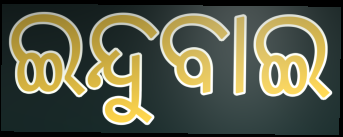
ଇନ୍ଦୁବାଇ